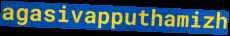
agasivapputhamizh